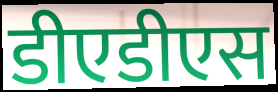
डीएडीएस